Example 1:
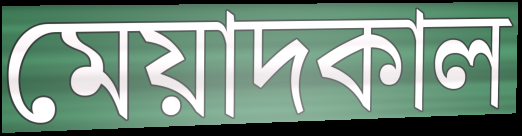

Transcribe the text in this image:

মেয়াদকাল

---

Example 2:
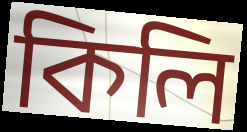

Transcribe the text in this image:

কিলি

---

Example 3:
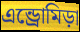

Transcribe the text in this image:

এন্ড্রোমিড়া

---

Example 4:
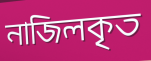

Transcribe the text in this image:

নাজিলকৃত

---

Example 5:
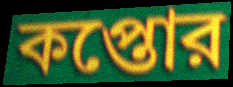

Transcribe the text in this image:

কপ্তোর